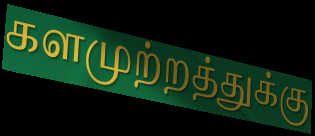
களமுற்றத்துக்கு